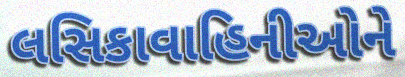
લસિકાવાહિનીઓને